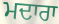
ਮਦਾਰਾ